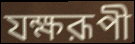
যক্ষরূপী